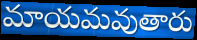
మాయమవుతారు